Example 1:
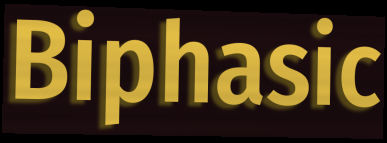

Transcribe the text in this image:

Biphasic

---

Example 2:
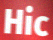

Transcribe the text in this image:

Hic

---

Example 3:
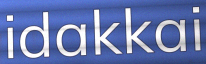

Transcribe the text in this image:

idakkai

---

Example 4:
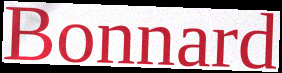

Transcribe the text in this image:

Bonnard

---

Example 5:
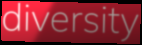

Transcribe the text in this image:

diversity